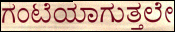
ಗಂಟೆಯಾಗುತ್ತಲೇ